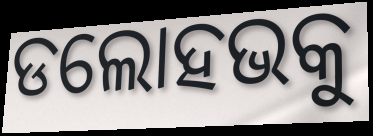
ଡଲୋହଭକୁ